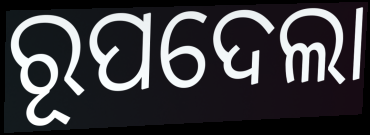
ରୂପଦେଲା